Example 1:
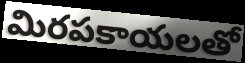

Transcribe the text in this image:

మిరపకాయలతో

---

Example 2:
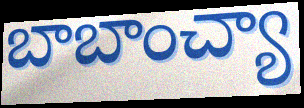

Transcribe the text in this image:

బాబాంచ్యా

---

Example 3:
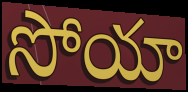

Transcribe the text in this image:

సోయా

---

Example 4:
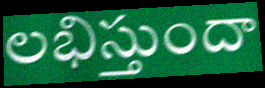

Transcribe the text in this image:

లభిస్తుందా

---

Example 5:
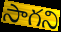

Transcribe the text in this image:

సాగని